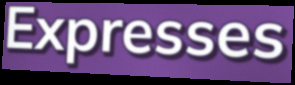
Expresses